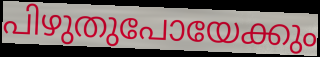
പിഴുതുപോയേക്കും